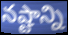
నష్టాన్ని